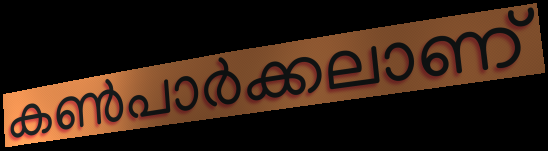
കൺപാർക്കലാണ്